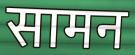
सामन